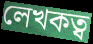
লেখকত্ব